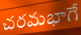
చరమభాగే